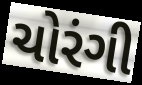
ચોરંગી